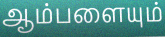
ஆம்பளையும்